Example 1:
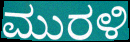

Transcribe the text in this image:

ಮುರಳಿ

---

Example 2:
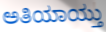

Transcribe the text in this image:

ಅತಿಯಾಯ್ತು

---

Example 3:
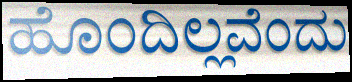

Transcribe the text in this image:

ಹೊಂದಿಲ್ಲವೆಂದು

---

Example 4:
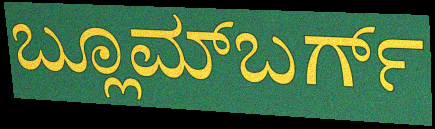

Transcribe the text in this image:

ಬ್ಲೂಮ್‌ಬರ್ಗ್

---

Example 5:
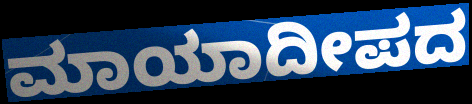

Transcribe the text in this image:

ಮಾಯಾದೀಪದ